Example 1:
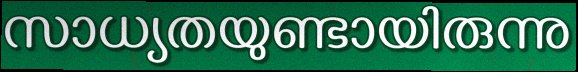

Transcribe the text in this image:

സാധ്യതയുണ്ടായിരുന്നു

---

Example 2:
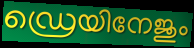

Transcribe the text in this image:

ഡ്രെയിനേജും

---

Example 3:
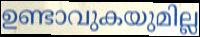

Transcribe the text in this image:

ഉണ്ടാവുകയുമില്ല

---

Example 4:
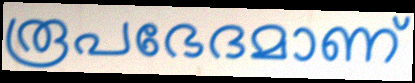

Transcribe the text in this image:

രൂപഭേദമാണ്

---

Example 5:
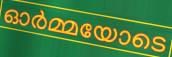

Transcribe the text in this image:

ഓർമ്മയോടെ